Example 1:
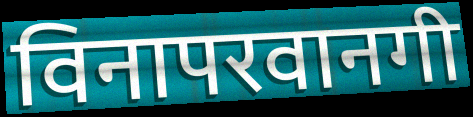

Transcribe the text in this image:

विनापरवानगी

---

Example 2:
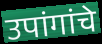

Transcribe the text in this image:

उपांगांचे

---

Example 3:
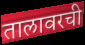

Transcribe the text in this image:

तालावरची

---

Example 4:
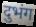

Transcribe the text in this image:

दुभंग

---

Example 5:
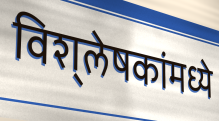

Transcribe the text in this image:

विश्लेषकांमध्ये